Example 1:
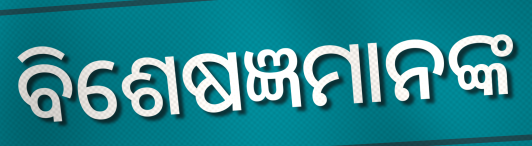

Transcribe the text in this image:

ବିଶେଷଜ୍ଞମାନଙ୍କ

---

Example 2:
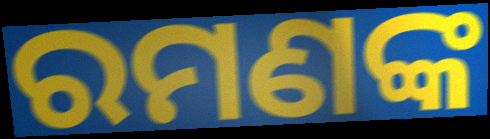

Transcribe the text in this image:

ରମଣଙ୍କ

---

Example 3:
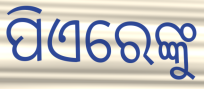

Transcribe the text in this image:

ପିଏରେଙ୍କୁ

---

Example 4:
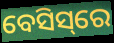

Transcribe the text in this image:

ବେସିସ୍‌ରେ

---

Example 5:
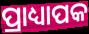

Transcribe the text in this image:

ପ୍ରାଧ୍ୟାପକ